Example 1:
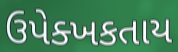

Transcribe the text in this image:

ઉપેક્ખકતાય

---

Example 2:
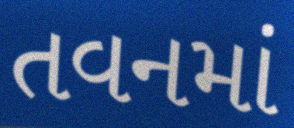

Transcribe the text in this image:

તવનમાં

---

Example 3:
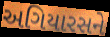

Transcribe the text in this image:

અગિયારસને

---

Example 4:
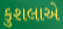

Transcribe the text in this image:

કુશલાએ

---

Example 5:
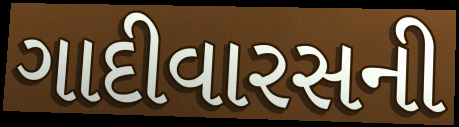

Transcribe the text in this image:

ગાદીવારસની